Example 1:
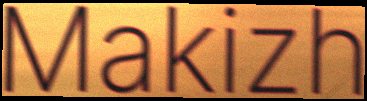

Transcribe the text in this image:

Makizh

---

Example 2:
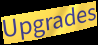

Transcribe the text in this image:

Upgrades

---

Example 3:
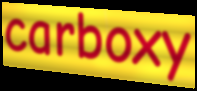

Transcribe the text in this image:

carboxy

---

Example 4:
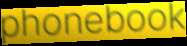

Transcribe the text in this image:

phonebook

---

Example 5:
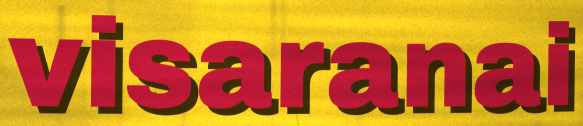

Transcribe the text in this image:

visaranai